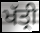
ਖੱਤ੍ਰੀ